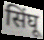
सिंघू